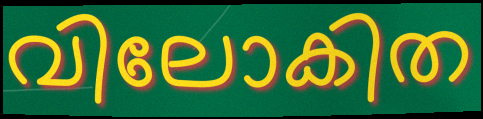
വിലോകിത